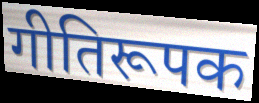
गीतिरूपक